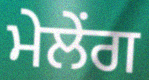
ਮੇਲੇਂਗ